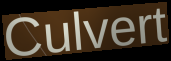
Culvert